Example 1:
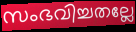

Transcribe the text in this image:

സംഭവിച്ചതല്ലേ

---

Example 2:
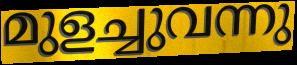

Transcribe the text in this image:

മുളച്ചുവന്നു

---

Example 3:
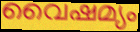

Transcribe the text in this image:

വൈഷമ്യം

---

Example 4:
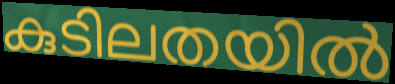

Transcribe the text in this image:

കുടിലതയിൽ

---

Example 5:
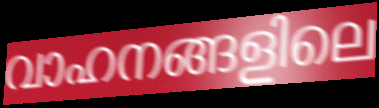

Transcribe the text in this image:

വാഹനങ്ങളിലെ